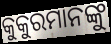
କୁକୁରମାନଙ୍କୁ